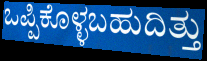
ಒಪ್ಪಿಕೊಳ್ಳಬಹುದಿತ್ತು